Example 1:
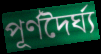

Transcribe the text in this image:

পূৰ্ণদৈৰ্ঘ্য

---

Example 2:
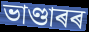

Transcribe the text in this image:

ভাণ্ডাৰৰ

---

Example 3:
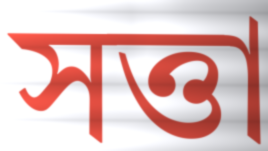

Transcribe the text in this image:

সত্তা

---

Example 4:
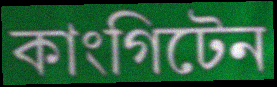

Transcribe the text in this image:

কাংগিটেন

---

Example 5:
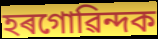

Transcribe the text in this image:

হৰগোৱিন্দক